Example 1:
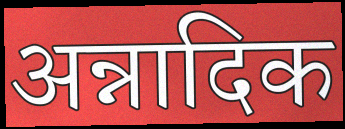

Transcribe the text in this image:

अन्नादिक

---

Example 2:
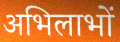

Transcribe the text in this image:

अभिलाभों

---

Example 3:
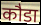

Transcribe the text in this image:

कौडा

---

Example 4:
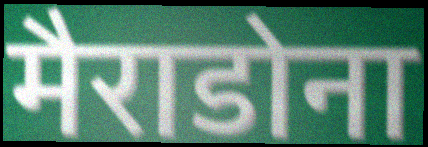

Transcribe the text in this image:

मैराडोना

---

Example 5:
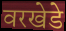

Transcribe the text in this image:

वरखेडे